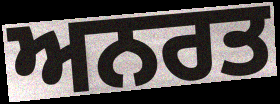
ਅਨਰਤ